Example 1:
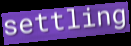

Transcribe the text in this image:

settling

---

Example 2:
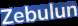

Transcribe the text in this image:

Zebulun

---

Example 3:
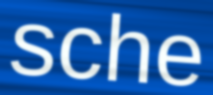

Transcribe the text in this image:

sche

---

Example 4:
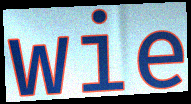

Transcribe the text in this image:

wie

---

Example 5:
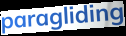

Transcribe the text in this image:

paragliding